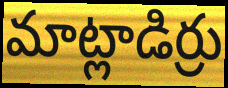
మాట్లాడిర్రు